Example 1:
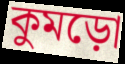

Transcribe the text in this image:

কুমড়ো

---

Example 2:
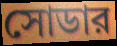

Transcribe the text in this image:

সোডার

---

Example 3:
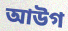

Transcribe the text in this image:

আউগ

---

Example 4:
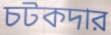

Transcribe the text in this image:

চটকদার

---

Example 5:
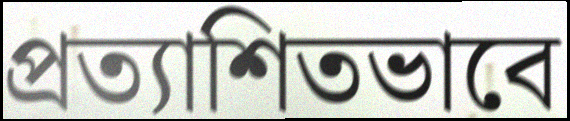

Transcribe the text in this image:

প্রত্যাশিতভাবে